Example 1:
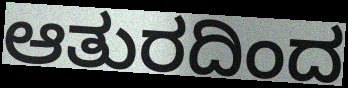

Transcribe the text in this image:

ಆತುರದಿಂದ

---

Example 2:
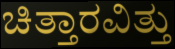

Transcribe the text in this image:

ಚಿತ್ತಾರವಿತ್ತು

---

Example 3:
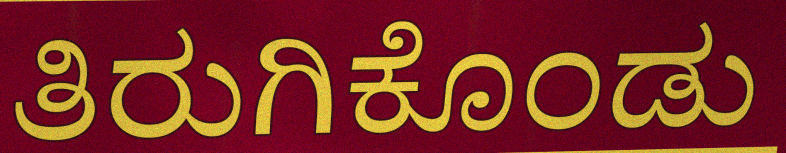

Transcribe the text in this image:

ತಿರುಗಿಕೊಂಡು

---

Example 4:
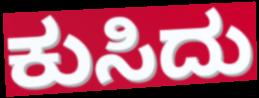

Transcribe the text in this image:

ಕುಸಿದು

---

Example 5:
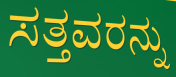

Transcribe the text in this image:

ಸತ್ತವರನ್ನು